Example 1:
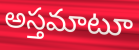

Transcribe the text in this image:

అస్తమాటూ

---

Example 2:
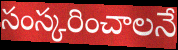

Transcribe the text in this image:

సంస్కరించాలనే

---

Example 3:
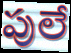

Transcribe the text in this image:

పులే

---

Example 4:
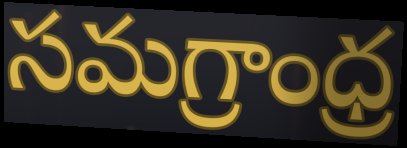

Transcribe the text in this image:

సమగ్రాంధ్ర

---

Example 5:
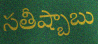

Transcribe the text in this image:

సతీష్బాబు